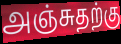
அஞ்சுதற்கு